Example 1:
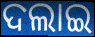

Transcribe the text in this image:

ଦଲାଇ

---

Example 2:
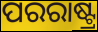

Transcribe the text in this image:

ପରରାଷ୍ଟ୍ର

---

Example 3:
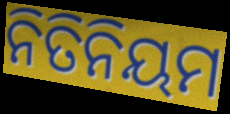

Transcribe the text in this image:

ନିତିନିୟମ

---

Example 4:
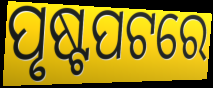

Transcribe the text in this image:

ପୃଷ୍ଟପଟରେ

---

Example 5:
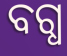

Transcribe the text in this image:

ବଗ୍ଧ